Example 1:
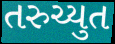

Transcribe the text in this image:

તરુચ્યુત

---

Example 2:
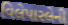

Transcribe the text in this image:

વિલેપારલેની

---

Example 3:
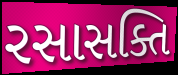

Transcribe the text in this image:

રસાસક્તિ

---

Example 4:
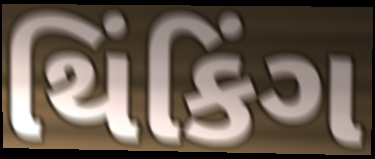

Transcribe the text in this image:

થિંકિંગ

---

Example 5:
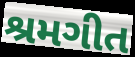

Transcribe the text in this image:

શ્રમગીત